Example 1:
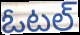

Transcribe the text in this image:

ఓటల్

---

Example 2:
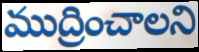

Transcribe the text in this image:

ముద్రించాలని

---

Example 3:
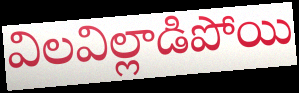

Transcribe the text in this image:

విలవిల్లాడిపోయి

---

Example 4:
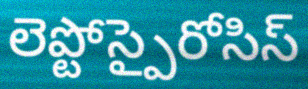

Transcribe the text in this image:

లెప్టోస్పైరోసిస్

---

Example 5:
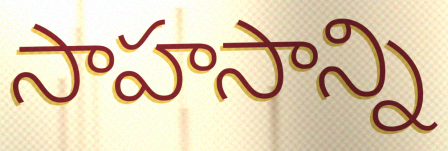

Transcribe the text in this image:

సాహసాన్ని